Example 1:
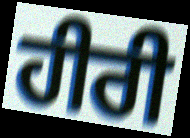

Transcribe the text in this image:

ਹੀਰੀ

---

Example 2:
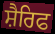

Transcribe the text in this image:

ਸ਼ੈਰਿਫ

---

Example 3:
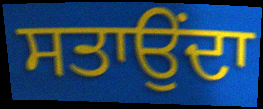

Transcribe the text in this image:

ਸਤਾਉਂਦਾ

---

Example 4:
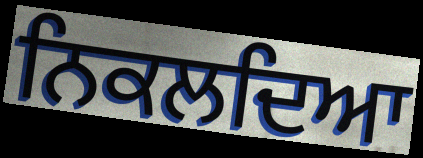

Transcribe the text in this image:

ਨਿਕਲਦਿਆ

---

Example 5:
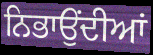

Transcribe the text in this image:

ਨਿਭਾਉਂਦੀਆਂ